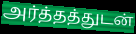
அர்த்தத்துடன்